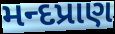
મન્દપ્રાણ